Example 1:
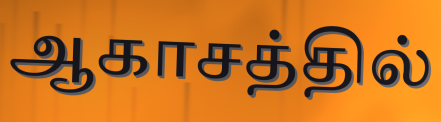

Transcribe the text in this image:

ஆகாசத்தில்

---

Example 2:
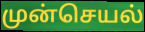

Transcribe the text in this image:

முன்செயல்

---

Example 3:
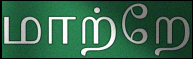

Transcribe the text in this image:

மாற்றே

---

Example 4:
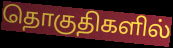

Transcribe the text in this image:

தொகுதிகளில்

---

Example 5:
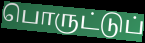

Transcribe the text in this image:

பொருட்டுப்